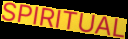
SPIRITUAL